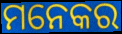
ମନେକର